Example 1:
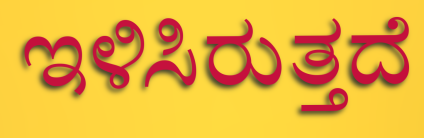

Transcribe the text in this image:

ಇಳಿಸಿರುತ್ತದೆ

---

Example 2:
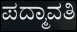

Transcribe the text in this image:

ಪದ್ಮಾವತಿ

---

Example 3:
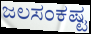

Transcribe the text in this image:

ಜಲಸಂಕಷ್ಟ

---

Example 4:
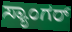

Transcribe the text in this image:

ಸ್ಯಾಂಗರ್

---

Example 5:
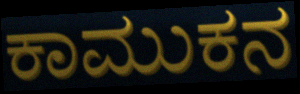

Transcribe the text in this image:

ಕಾಮುಕನ